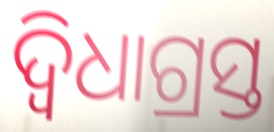
ଦ୍ୱିଧାଗ୍ରସ୍ତ